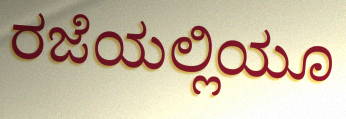
ರಜೆಯಲ್ಲಿಯೂ